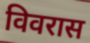
विवरास